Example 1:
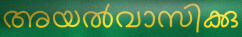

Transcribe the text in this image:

അയൽവാസിക്കു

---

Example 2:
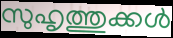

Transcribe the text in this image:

സുഹൃത്തുക്കൾ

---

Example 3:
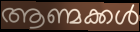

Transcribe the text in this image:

ആണ്മക്കൾ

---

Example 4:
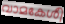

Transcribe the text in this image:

വാമകേശീ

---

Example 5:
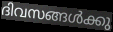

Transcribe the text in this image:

ദിവസങ്ങൾക്കു